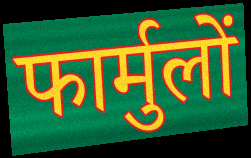
फार्मुलों